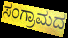
ಸಂಗ್ರಾಮದ